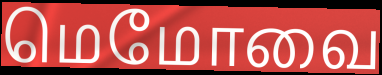
மெமோவை